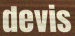
devis